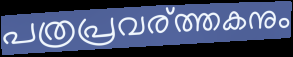
പത്രപ്രവര്ത്തകനും